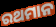
ରଥମାନ